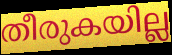
തീരുകയില്ല